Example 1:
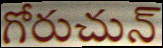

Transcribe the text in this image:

గోరుచున్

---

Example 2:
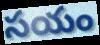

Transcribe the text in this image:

సయం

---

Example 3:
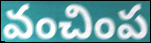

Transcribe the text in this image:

వంచింప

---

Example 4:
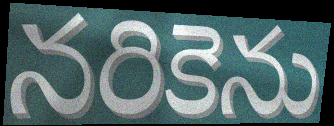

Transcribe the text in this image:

నరికెను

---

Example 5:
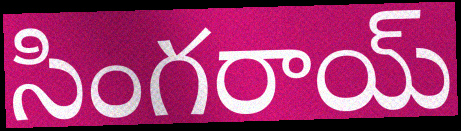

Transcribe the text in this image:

సింగరాయ్